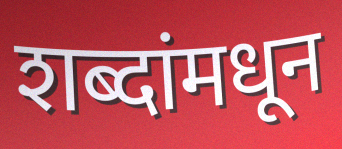
शब्दांमधून